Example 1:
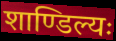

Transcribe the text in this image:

शाण्डिल्यः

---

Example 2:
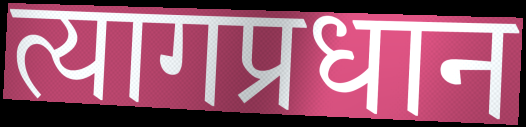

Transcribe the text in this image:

त्यागप्रधान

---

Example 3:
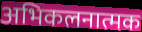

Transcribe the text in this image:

अभिकलनात्मक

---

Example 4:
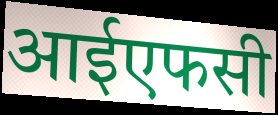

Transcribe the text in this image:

आईएफसी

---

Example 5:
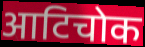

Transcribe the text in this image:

आटिचोक